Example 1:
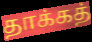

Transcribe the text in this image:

தாக்கத்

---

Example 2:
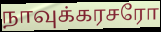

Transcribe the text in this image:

நாவுக்கரசரோ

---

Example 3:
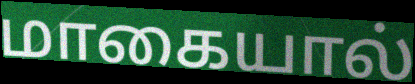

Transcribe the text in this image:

மாகையால்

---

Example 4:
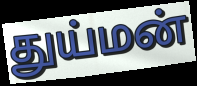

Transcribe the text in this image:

துய்மன்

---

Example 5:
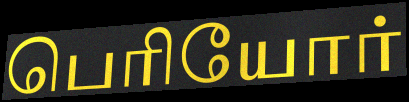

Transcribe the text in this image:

பெரியோர்